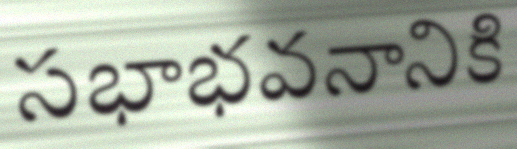
సభాభవనానికి